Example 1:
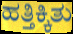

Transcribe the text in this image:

ಹತ್ತಿಕ್ಕಿತು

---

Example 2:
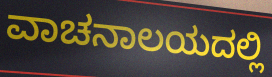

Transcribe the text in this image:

ವಾಚನಾಲಯದಲ್ಲಿ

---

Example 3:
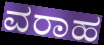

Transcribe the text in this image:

ವರಾಹ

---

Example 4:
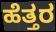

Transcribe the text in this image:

ಹೆತ್ತರ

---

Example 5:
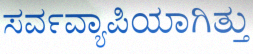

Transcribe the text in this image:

ಸರ್ವವ್ಯಾಪಿಯಾಗಿತ್ತು